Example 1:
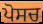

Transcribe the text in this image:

ਪੋਸਚ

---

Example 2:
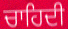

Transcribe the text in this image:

ਚਾਹਿਦੀ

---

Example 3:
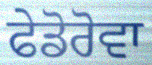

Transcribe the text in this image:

ਫੇਡੋਰੋਵਾ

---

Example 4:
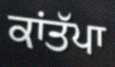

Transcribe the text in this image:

ਕਾਂਤੱਪਾ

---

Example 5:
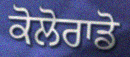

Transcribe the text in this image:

ਕੋਲੋਰਾਡੋ